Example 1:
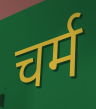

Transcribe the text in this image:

चर्म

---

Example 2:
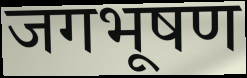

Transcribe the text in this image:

जगभूषण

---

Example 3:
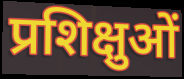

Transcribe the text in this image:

प्रशिक्षुओं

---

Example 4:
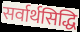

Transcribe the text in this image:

सर्वार्थसिद्धि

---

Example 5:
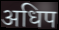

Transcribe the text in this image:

अधिप